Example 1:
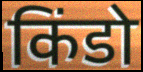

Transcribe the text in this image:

किंडो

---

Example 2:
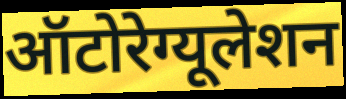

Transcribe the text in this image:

ऑटोरेग्यूलेशन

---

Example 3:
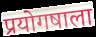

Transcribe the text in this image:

प्रयोगषाला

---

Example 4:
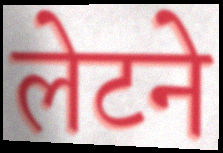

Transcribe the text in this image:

लेटने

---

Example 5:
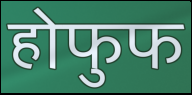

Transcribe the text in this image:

होफुफ